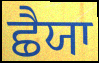
ਛੈਯਾ